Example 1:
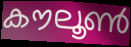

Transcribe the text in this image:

കൗലൂൺ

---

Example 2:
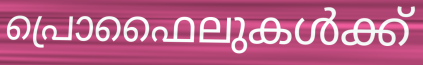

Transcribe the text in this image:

പ്രൊഫൈലുകൾക്ക്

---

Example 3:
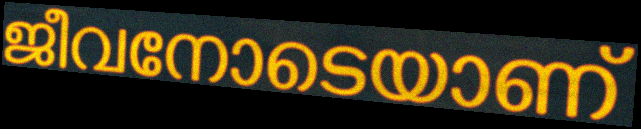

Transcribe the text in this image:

ജീവനോടെയാണ്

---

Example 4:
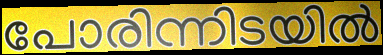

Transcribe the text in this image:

പോരിന്നിടയിൽ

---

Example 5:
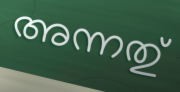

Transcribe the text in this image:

അന്നതു്